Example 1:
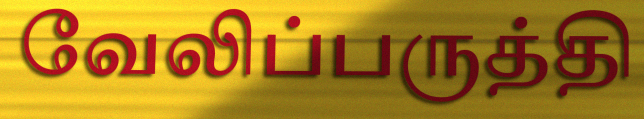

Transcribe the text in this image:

வேலிப்பருத்தி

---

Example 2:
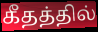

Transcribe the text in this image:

கீதத்தில்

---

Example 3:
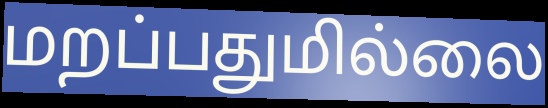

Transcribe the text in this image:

மறப்பதுமில்லை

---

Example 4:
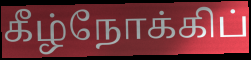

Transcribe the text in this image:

கீழ்நோக்கிப்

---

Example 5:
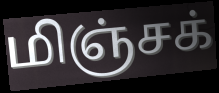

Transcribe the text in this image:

மிஞ்சக்